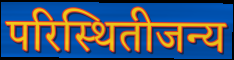
परिस्थितीजन्य